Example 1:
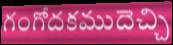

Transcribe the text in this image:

గంగోదకముదెచ్చి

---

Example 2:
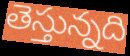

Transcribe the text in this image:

తెస్తున్నది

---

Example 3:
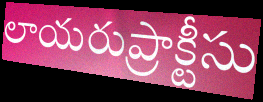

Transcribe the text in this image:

లాయరుప్రాక్టీసు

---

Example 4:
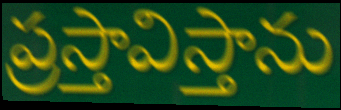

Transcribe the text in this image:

ప్రస్తావిస్తాను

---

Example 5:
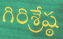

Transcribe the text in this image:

గిరిశ్రేష్ఠ